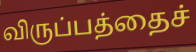
விருப்பத்தைச்